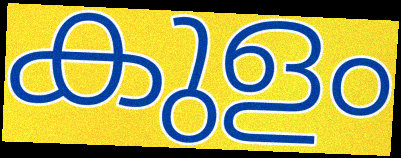
കുളം